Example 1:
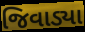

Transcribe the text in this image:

જિવાડ્યા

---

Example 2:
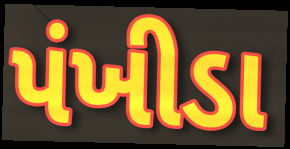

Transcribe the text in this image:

પંખીડા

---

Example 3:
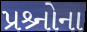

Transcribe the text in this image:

પ્રશ્ર્નોના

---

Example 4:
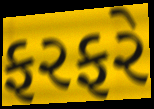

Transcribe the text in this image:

ફરફરે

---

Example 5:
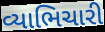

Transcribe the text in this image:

વ્યાભિચારી